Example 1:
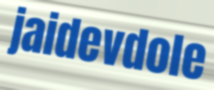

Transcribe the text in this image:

jaidevdole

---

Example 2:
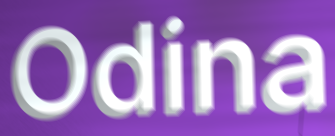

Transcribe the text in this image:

Odina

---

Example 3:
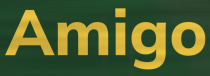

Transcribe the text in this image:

Amigo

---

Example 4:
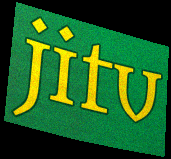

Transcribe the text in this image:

jitu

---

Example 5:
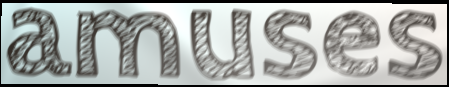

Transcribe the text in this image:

amuses